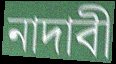
নাদাবী